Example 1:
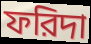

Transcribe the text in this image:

ফরিদা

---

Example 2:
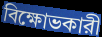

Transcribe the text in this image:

বিক্ষোভকারী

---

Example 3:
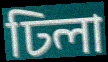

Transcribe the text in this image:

ঢিলা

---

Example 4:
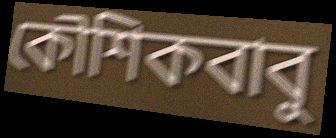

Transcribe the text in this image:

কৌশিকবাবু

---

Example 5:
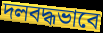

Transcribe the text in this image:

দলবদ্ধভাবে